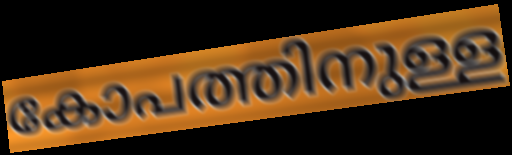
കോപത്തിനുള്ള